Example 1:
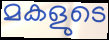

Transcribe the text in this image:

മകളുടെ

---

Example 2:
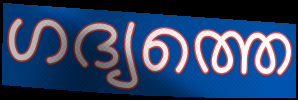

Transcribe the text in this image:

ഗദ്യത്തെ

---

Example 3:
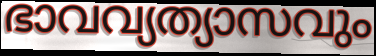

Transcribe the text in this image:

ഭാവവ്യത്യാസവും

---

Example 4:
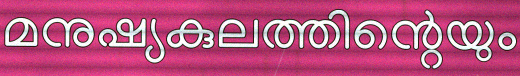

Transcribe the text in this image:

മനുഷ്യകുലത്തിന്റെയും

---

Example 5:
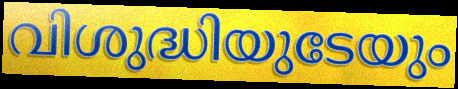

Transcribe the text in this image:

വിശുദ്ധിയുടേയും